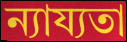
ন্যায্যতা